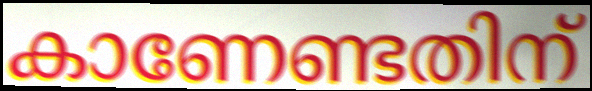
കാണേണ്ടതിന്